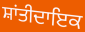
ਸ਼ਾਂਤੀਦਾਇਕ